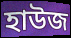
হাউজ